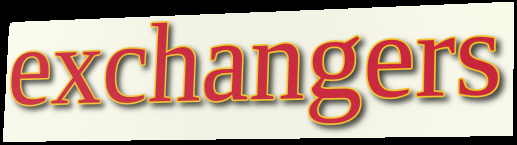
exchangers